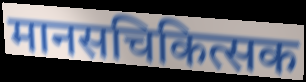
मानसचिकित्सक